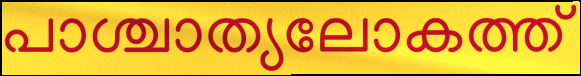
പാശ്ചാത്യലോകത്ത്